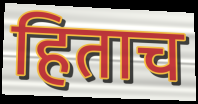
हिताच